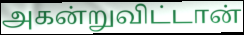
அகன்றுவிட்டான்